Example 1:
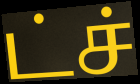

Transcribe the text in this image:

ட்ச்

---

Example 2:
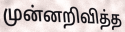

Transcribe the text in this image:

முன்னறிவித்த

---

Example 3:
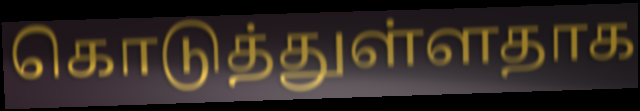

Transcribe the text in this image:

கொடுத்துள்ளதாக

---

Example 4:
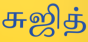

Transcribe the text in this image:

சுஜித்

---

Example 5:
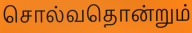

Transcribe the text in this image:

சொல்வதொன்றும்